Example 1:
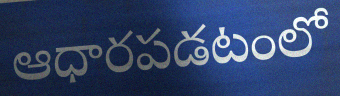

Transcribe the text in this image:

ఆధారపడటంలో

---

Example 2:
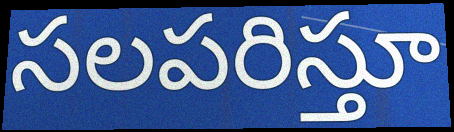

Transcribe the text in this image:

సలపరిస్తూ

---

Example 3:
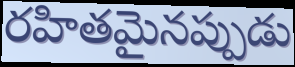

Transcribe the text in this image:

రహితమైనప్పుడు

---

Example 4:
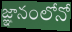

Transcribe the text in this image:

జ్ఞానంలోనో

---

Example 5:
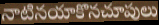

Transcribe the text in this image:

నాటినయాకొనచూపులు